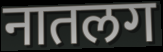
नातलग